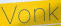
Vonk